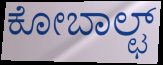
ಕೋಬಾಲ್ಟ್